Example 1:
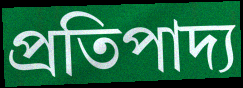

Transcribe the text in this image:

প্রতিপাদ্য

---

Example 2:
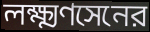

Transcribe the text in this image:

লক্ষ্মণসেনের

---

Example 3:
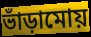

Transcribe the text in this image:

ভাঁড়ামোয়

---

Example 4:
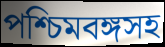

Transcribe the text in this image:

পশ্চিমবঙ্গসহ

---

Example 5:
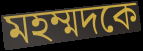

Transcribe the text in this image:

মহম্মদকে